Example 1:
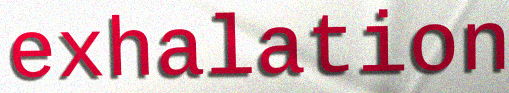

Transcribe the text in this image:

exhalation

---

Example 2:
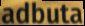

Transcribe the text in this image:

adbuta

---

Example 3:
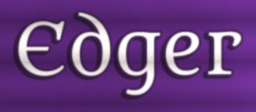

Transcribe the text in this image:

Edger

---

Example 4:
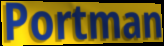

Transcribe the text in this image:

Portman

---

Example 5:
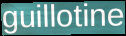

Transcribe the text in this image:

guillotine